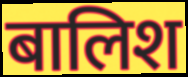
बालिश